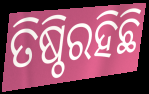
ତିଷ୍ଠିରହିଛି